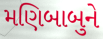
મણિબાબુને